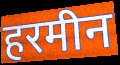
हरमीन